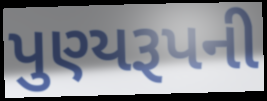
પુણ્યરૂપની